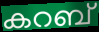
കറബ്